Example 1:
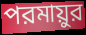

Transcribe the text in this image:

পরমায়ুর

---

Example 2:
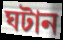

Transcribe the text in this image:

ঘটান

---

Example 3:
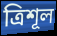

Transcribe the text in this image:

ত্রিশূল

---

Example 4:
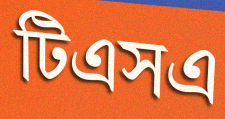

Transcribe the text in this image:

টিএসএ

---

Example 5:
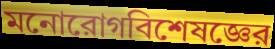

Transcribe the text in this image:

মনোরোগবিশেষজ্ঞের